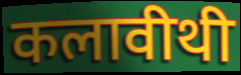
कलावीथी